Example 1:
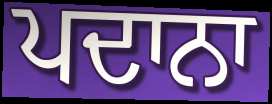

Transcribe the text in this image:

ਪਦਾਨਾ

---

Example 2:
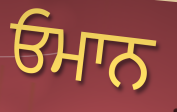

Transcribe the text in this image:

ਓਮਾਨ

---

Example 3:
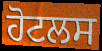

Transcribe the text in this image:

ਹੋਟਲਸ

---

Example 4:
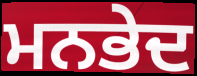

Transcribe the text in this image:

ਮਨਭੇਦ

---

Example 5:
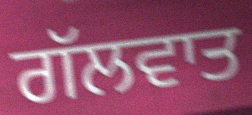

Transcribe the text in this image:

ਗੱਲਵਾਤ